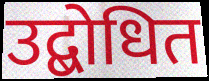
उद्बोधित